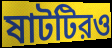
ষাটটিরও